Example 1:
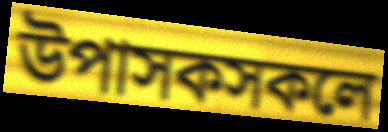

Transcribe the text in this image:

উপাসকসকলে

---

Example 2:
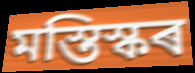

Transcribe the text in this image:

মস্তিস্কৰ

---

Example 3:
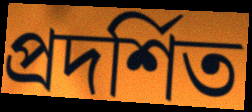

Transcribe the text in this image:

প্ৰদৰ্শিত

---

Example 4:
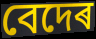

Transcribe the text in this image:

বেদেৰ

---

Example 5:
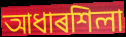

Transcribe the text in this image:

আধাৰশিলা